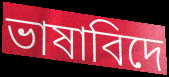
ভাষাবিদে